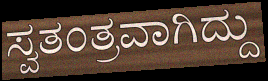
ಸ್ವತಂತ್ರವಾಗಿದ್ದು